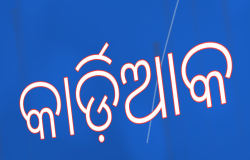
କାର୍ଡ଼ିଆକ